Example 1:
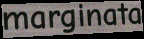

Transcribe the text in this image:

marginata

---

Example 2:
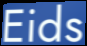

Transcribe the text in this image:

Eids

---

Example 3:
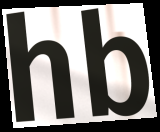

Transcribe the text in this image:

hb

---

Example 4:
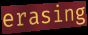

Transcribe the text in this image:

erasing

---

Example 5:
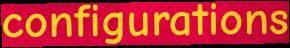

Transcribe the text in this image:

configurations